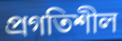
প্ৰগতিশীল